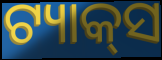
ଟ୍ୟାକ୍‌ସ